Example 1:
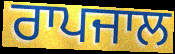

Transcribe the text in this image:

ਰਾਪਜਾਲ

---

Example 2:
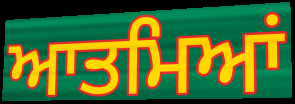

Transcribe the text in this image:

ਆਤਮਿਆਂ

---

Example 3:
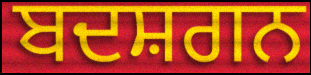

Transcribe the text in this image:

ਬਦਸ਼ਗਨ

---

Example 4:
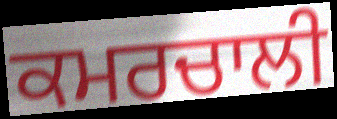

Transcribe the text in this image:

ਕਮਰਚਾਲੀ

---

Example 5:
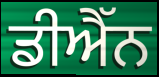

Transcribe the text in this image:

ਡੀਐੱਨ